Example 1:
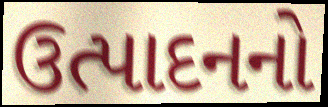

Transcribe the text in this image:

ઉત્પાદનનો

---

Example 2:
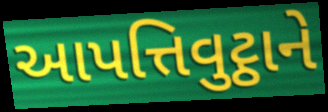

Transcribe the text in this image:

આપત્તિવુટ્ઠાને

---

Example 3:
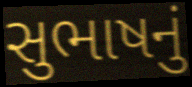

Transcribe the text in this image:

સુભાષનું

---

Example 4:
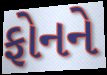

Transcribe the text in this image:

ફોનને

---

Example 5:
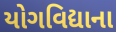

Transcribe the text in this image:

યોગવિદ્યાના